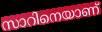
സാറിനെയാണ്